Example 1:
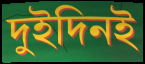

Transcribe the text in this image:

দুইদিনই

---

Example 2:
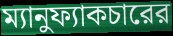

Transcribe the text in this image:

ম্যানুফ্যাকচারের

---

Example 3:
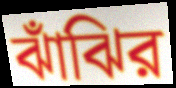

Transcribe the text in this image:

ঝাঁঝির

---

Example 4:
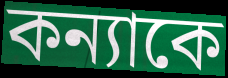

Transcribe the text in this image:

কন্যাকে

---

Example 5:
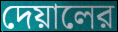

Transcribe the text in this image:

দেয়ালের